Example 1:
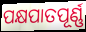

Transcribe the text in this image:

ପକ୍ଷପାତପୂର୍ଣ୍ଣ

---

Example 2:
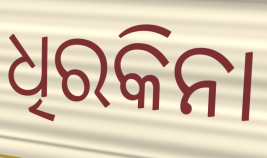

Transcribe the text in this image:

ଧିରକିନା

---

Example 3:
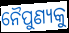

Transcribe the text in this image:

ନୈପୁଣ୍ୟକୁ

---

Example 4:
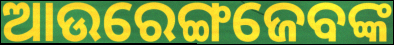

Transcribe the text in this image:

ଆଉରେଙ୍ଗଜେବଙ୍କ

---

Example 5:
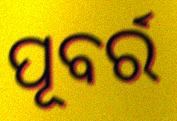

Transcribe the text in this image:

ପୂବର୍ର